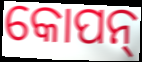
କୋପନ୍